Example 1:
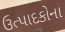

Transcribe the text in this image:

ઉત્પાદકોના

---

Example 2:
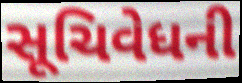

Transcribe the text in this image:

સૂચિવેધની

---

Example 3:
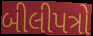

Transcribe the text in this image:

બીલીપત્રો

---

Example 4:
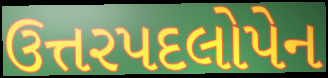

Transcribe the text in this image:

ઉત્તરપદલોપેન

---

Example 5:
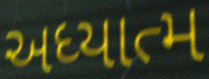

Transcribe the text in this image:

અધ્યાત્મ